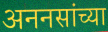
अननसांच्या